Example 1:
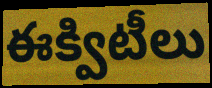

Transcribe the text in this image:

ఈక్విటీలు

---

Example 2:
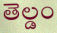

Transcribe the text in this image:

తెల్డం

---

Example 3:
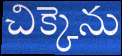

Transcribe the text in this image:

చిక్కెను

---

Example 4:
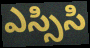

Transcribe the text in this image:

ఎస్సిసి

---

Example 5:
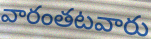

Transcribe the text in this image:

వారంతటవారు